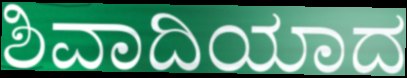
ಶಿವಾದಿಯಾದ